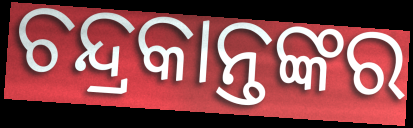
ଚନ୍ଦ୍ରକାନ୍ତଙ୍କର